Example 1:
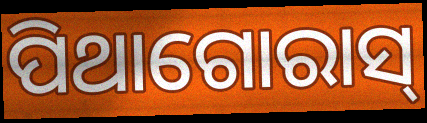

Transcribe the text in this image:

ପିଥାଗୋରାସ୍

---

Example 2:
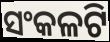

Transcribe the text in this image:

ସଂକଳଟି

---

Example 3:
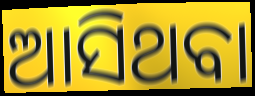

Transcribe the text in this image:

ଆସିଥବା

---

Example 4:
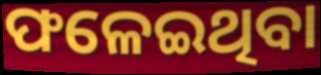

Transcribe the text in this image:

ଫଳେଇଥିବା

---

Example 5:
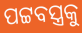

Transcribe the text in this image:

ପଟ୍ଟବସ୍ତ୍ରକୁ